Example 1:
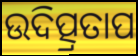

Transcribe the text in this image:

ଉଦିତ୍ପ୍ରତାପ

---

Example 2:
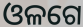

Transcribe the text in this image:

ଓଳଗେ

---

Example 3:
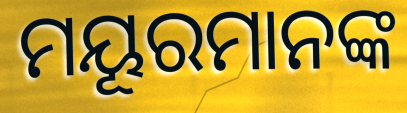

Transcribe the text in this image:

ମୟୂରମାନଙ୍କ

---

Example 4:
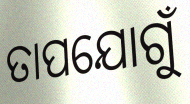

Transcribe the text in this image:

ତାପଯୋଗୁଁ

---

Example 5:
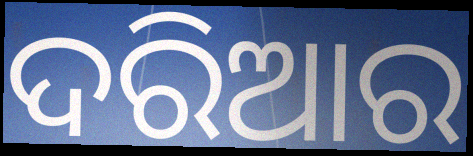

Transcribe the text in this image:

ଦରିଆର